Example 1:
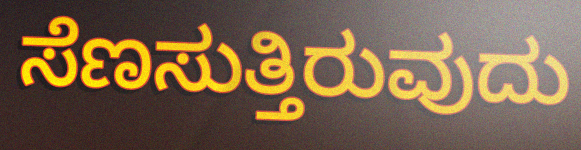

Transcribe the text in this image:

ಸೆಣಸುತ್ತಿರುವುದು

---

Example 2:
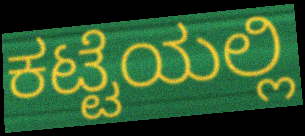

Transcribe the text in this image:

ಕಟ್ಟೆಯಲ್ಲಿ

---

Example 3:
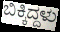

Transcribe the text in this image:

ಬಿಕ್ಕಿದ್ದಳು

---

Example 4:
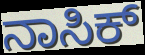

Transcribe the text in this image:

ನಾಸಿಕ್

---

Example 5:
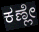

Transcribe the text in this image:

ಕಣ್ಲೇ